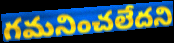
గమనించలేదని